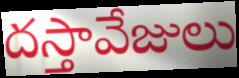
దస్తావేజులు